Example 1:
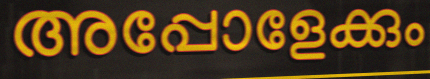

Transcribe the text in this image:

അപ്പോളേക്കും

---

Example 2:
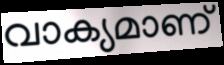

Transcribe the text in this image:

വാക്യമാണ്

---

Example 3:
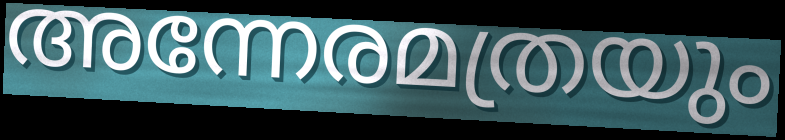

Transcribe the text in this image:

അന്നേരമത്രയും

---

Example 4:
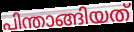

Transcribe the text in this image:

പിന്താങ്ങിയത്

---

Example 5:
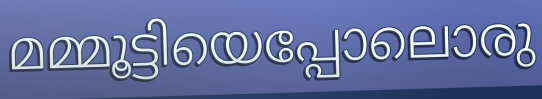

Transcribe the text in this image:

മമ്മൂട്ടിയെപ്പോലൊരു